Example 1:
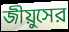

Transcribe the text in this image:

জীয়ুসের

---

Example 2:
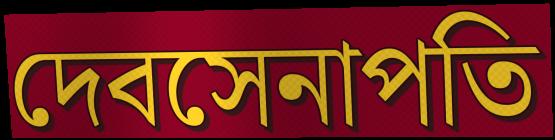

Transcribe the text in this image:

দেবসেনাপতি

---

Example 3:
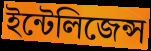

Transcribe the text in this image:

ইন্টেলিজেন্স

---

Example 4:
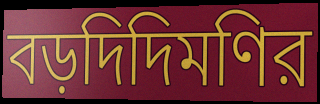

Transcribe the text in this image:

বড়দিদিমণির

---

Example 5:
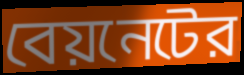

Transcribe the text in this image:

বেয়নেটের